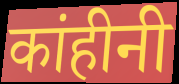
कांहीनी